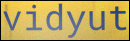
vidyut